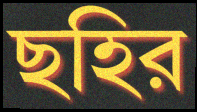
ছহির